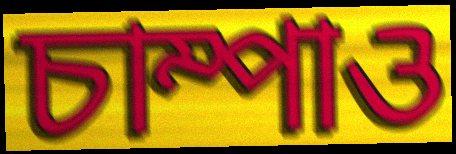
চাম্পাও